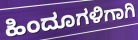
ಹಿಂದೂಗಳಿಗಾಗಿ